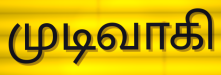
முடிவாகி